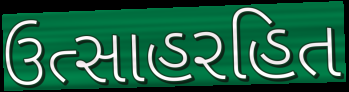
ઉત્સાહરહિત